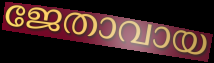
ജേതാവായ